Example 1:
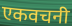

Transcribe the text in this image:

एकवचनी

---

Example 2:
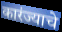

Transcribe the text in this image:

कारंज्याचे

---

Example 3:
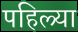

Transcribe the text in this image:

पहिल्या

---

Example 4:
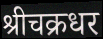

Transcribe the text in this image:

श्रीचक्रधर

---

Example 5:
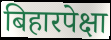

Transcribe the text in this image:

बिहारपेक्षा